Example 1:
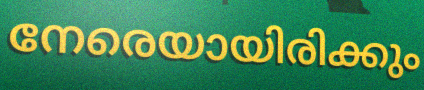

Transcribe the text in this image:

നേരെയായിരിക്കും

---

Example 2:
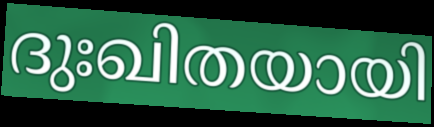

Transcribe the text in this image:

ദുഃഖിതയായി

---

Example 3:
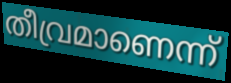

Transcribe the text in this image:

തീവ്രമാണെന്ന്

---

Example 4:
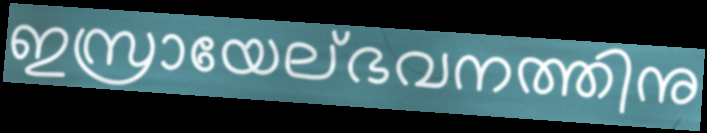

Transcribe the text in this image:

ഇസ്രായേല്ഭവനത്തിനു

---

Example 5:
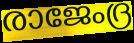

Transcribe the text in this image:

രാജേംദ്ര